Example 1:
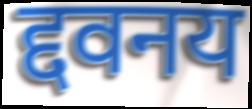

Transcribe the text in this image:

द्दवनय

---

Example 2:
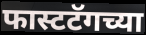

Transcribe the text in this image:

फास्टटॅगच्या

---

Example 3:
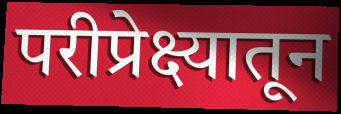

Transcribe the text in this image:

परीप्रेक्ष्यातून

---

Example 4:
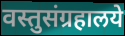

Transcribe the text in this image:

वस्तुसंग्रहालये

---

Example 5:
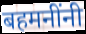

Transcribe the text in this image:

बहमनींनी